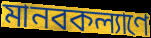
মানবকল্যাণে